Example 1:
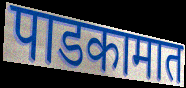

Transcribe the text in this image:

पाडकामात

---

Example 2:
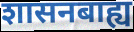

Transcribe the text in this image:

शासनबाह्य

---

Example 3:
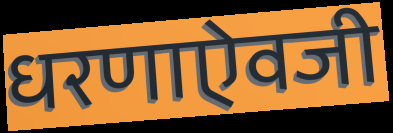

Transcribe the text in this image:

धरणाऐवजी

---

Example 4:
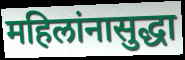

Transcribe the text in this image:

महिलांनासुद्धा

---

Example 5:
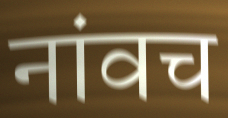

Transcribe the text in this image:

नांवच